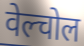
वेल्चोल